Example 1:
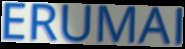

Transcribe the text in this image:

ERUMAI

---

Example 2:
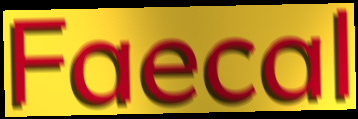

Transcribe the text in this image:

Faecal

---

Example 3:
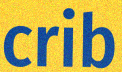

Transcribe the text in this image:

crib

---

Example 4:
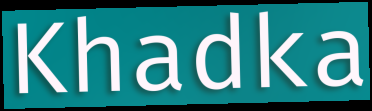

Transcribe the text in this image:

Khadka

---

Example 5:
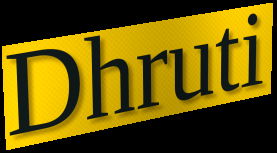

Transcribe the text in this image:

Dhruti